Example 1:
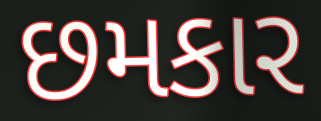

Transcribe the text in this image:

છમકાર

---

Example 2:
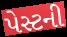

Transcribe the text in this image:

પેસ્ટની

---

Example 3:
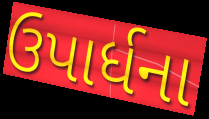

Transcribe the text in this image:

ઉપાર્ધના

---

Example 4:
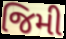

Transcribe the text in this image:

જિમી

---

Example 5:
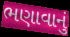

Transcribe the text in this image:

ભણાવાનું